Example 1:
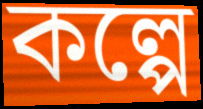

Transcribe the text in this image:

কল্পে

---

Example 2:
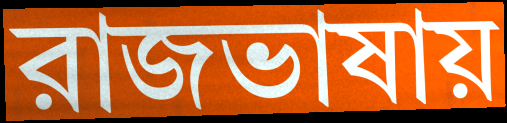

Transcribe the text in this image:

রাজভাষায়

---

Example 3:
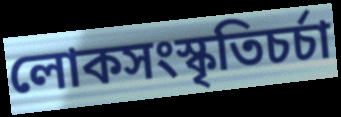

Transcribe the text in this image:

লোকসংস্কৃতিচর্চা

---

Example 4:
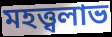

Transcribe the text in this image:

মহত্ত্বলাভ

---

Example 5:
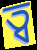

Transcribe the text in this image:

ত্ব